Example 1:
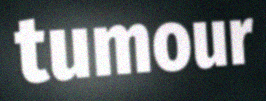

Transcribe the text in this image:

tumour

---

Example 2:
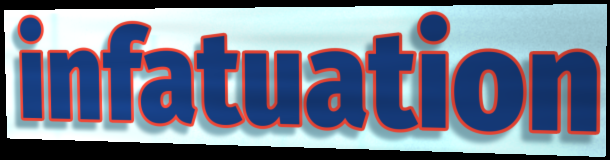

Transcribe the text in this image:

infatuation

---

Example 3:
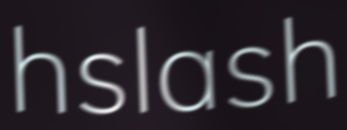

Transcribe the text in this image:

hslash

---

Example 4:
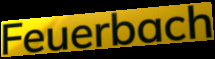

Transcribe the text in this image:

Feuerbach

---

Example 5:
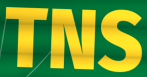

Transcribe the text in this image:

TNS